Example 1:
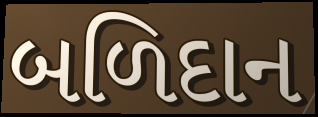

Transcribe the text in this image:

બળિદાન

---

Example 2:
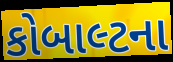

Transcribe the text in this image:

કોબાલ્ટના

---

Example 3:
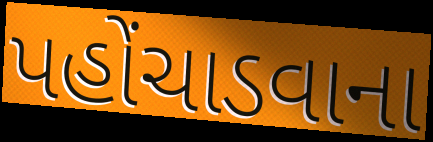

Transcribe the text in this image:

પહોંચાડવાના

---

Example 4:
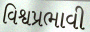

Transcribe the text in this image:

વિશ્વપ્રભાવી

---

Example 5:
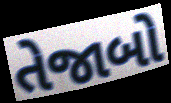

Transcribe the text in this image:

તેજાબો